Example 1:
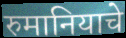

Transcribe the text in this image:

रुमानियाचे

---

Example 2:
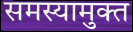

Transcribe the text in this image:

समस्यामुक्त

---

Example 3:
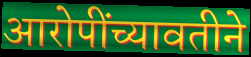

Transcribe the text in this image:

आरोपींच्यावतीने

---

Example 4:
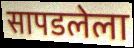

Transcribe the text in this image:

सापडलेला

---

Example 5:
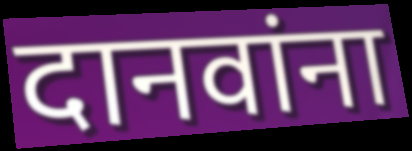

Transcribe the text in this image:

दानवांना